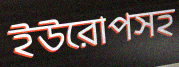
ইউরোপসহ